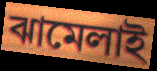
ঝামেলাই